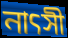
নাৎসী